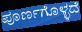
ಪೂರ್ಣಗೊಳ್ಳದೆ